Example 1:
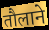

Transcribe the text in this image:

तौलाने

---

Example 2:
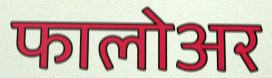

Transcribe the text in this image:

फालोअर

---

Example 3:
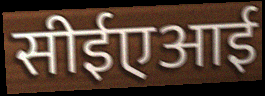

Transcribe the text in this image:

सीईएआई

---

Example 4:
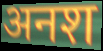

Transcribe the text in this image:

अनश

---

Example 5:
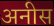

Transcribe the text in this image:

अनीस